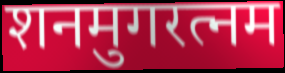
शनमुगरत्नम